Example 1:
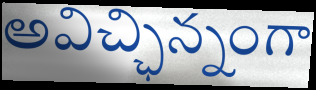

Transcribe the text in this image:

అవిచ్ఛిన్నంగా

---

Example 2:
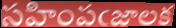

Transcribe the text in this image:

సహింపఁజాలక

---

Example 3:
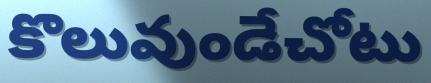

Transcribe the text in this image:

కొలువుండేచోటు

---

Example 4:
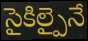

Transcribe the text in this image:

సైకిల్పైనే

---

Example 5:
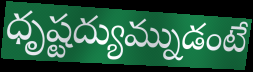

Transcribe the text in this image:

ధృష్టద్యుమ్నుడంటే